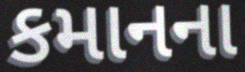
કમાનના